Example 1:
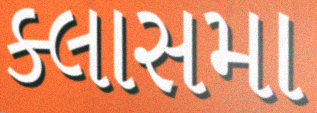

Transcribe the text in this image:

ક્લાસમા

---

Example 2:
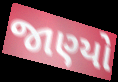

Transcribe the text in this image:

જાણ્યો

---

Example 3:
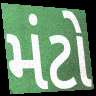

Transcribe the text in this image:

મંટો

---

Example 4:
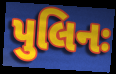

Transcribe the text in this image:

પુલિનઃ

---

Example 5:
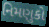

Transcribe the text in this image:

નિમણુકો